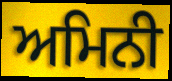
ਅਮਿਨੀ